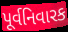
પૂર્વનિવારક